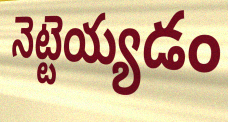
నెట్టెయ్యడం